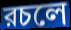
রচলে